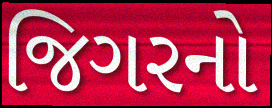
જિગરનો